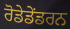
ਰੋਡੇਡੇਂਡਰਨ